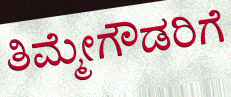
ತಿಮ್ಮೇಗೌಡರಿಗೆ